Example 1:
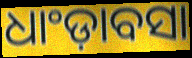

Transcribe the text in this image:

ଧାଂଡ଼ାବସା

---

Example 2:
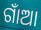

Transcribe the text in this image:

ଗାଁଆ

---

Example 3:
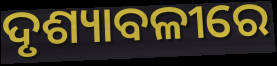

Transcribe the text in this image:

ଦୃଶ୍ୟାବଳୀରେ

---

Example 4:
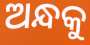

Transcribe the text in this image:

ଅନ୍ଧକୁ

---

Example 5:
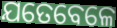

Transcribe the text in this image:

ଯତେବେଳେ